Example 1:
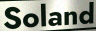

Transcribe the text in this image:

Soland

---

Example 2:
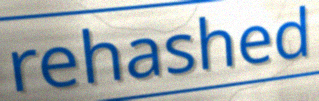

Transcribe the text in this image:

rehashed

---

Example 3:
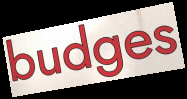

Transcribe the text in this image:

budges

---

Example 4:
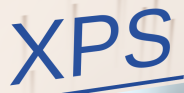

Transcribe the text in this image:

XPS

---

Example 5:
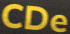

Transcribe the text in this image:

CDe